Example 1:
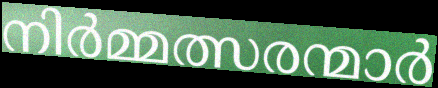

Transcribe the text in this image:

നിർമ്മത്സരന്മാർ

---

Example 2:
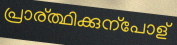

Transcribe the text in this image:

പ്രാര്ത്ഥിക്കുന്പോള്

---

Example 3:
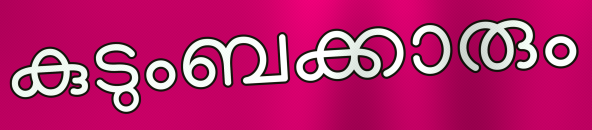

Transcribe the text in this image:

കുടുംബക്കാരും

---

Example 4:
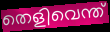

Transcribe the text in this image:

തെളിവെന്ത്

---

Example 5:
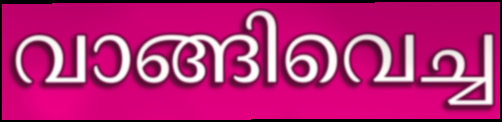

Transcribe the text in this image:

വാങ്ങിവെച്ച